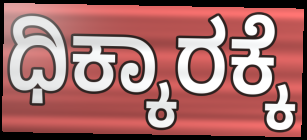
ಧಿಕ್ಕಾರಕ್ಕೆ